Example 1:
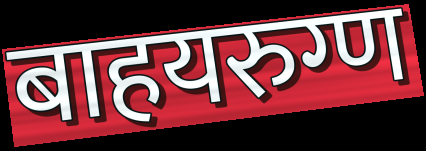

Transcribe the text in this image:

बाहयरुग्ण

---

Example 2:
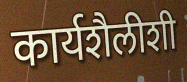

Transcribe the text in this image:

कार्यशैलीशी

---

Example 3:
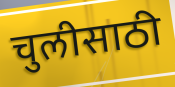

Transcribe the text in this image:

चुलीसाठी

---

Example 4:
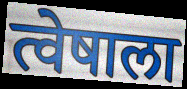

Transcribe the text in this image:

त्वेषाला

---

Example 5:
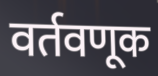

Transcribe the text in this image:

वर्तवणूक